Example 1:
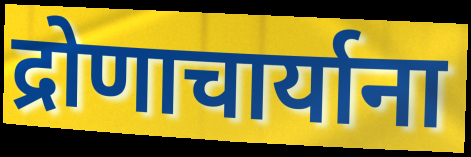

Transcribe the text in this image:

द्रोणाचार्याना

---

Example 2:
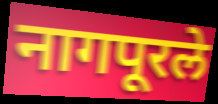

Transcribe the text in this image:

नागपूरले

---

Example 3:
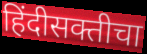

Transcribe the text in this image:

हिंदीसक्तीचा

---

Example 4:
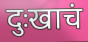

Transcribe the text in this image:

दुःखाचं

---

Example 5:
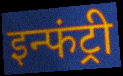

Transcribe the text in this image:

इन्फंट्री